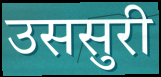
उससुरी